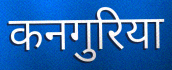
कनगुरिया